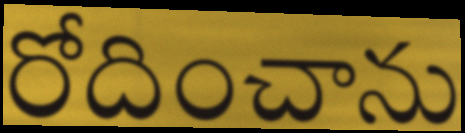
రోదించాను